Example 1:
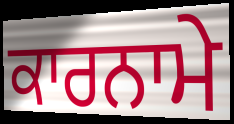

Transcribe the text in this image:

ਕਾਰਨਾਮੇ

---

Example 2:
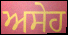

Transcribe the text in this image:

ਅਸੇਹ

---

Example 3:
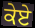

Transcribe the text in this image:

ਕੇਏ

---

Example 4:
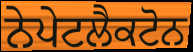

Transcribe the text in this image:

ਨੇਪੇਟਲੈਕਟੋਨ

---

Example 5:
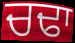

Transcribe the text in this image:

ਚਢਾ